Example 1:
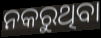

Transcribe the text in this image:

ନକରୁଥିବା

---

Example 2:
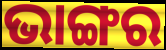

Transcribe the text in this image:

ଭାଙ୍ଗର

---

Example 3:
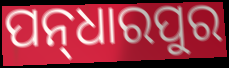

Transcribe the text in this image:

ପନ୍‌ଧାରପୁର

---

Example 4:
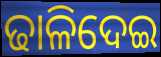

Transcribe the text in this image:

ଢାଳିଦେଇ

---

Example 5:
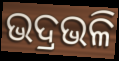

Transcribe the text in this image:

ଭଦ୍ରଭଳି